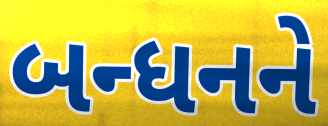
બન્ધનને